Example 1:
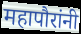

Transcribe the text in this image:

महापौरांनी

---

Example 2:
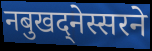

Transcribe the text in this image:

नबुखद्नेस्सरने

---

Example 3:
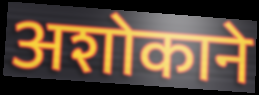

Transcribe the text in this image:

अशोकाने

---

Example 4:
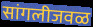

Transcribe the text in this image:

सांगलीजवळ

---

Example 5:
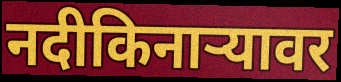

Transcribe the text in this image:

नदीकिनाऱ्यावर